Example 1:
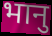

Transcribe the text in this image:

भानु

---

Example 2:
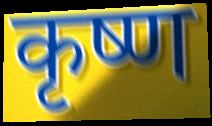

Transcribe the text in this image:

कृष्ण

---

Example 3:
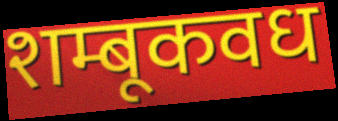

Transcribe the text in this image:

शम्बूकवध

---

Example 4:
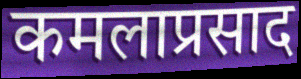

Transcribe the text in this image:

कमलाप्रसाद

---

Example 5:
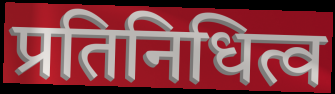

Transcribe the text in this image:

प्रतिनिधित्व